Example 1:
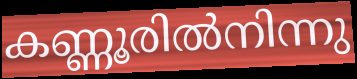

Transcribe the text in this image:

കണ്ണൂരിൽനിന്നു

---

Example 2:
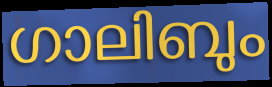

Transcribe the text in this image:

ഗാലിബും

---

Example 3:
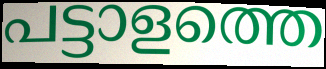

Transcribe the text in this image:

പട്ടാളത്തെ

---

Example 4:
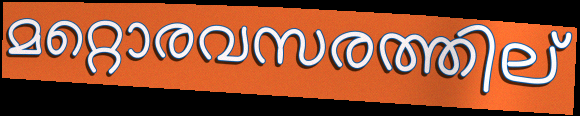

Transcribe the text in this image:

മറ്റൊരവസരത്തില്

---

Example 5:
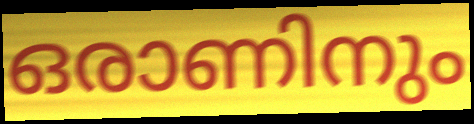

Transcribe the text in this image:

ഒരാണിനും